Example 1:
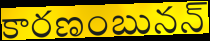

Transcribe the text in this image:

కారణంబునన్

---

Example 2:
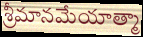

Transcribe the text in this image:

శ్రీమానమేయాత్మా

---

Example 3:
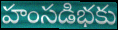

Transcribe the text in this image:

హంసడిభకు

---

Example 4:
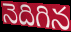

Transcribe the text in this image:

నెదిగిన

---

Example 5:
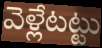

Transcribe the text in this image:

వెళ్లేటట్టు